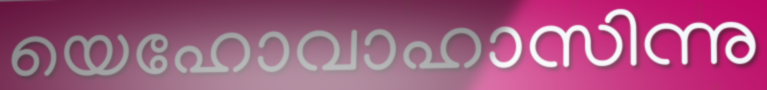
യെഹോവാഹാസിന്നു